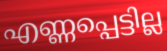
എണ്ണപ്പെട്ടില്ല